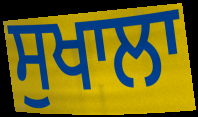
ਸੁਖਾਲਾ